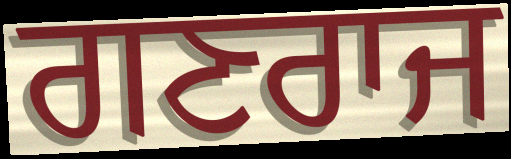
ਗਣਰਾਜ